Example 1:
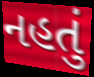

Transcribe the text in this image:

નહતું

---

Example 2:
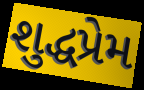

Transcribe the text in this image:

શુદ્ધપ્રેમ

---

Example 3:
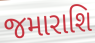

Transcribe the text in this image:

જમારાશિ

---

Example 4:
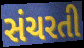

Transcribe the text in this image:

સંચરતી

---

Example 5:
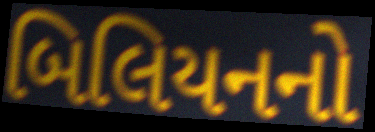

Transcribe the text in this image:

બિલિયનનો